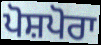
ਪੋਸ਼ਪੋਰਾ